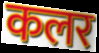
कलर